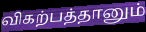
விகற்பத்தானும்